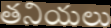
తనియలు